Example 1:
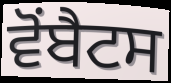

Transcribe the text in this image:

ਵੋਂਬੈਟਸ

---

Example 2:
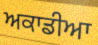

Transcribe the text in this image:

ਅਕਾਡੀਆ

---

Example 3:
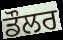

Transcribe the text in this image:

ਡੌਲਰ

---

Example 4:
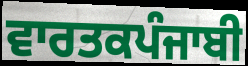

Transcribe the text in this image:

ਵਾਰਤਕਪੰਜਾਬੀ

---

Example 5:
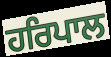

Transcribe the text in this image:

ਹਰਿਪਾਲ